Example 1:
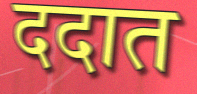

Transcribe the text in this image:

ददात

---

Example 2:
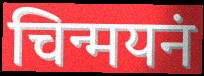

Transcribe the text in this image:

चिन्मयनं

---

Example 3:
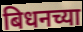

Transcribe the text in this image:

बिधनच्या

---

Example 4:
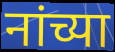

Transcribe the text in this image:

नांच्या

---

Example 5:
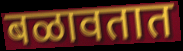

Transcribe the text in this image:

बळावतात